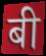
बी